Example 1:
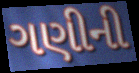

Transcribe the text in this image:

ગણીની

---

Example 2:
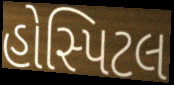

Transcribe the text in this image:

હોસ્પિટલ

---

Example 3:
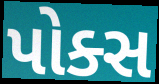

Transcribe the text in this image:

પોક્સ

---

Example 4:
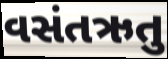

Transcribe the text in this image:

વસંતઋતુ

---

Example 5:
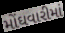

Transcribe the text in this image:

મોંઘવારીમાં